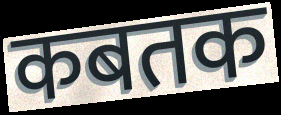
कबतक